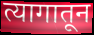
त्यागातून